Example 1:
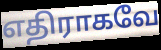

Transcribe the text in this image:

எதிராகவே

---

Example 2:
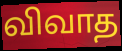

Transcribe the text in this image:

விவாத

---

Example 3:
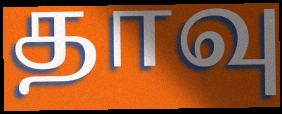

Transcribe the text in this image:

தாவு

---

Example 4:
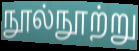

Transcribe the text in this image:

நூல்நூற்று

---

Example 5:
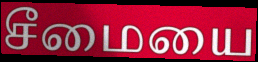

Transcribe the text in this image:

சீமையை